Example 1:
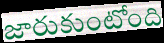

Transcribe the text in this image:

జారుకుంటోంది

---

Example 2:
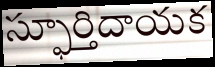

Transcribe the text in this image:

స్ఫూర్తిదాయక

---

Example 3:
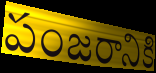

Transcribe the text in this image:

పంజరానికి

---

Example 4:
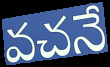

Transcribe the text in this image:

వచనే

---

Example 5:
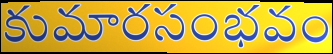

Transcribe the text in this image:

కుమారసంభవం